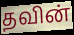
தவின்